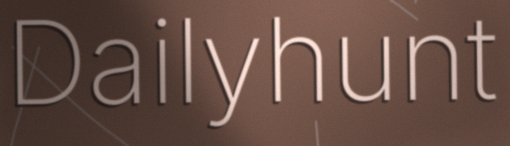
Dailyhunt